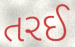
તરઈ